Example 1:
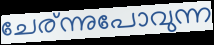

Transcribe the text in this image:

ചേര്ന്നുപോവുന്ന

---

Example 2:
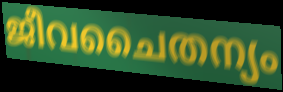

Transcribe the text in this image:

ജീവചൈതന്യം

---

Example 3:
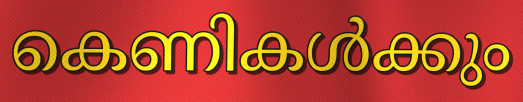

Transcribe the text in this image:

കെണികൾക്കും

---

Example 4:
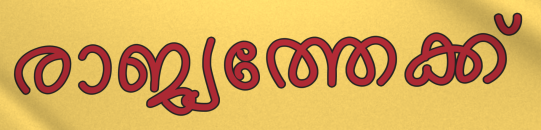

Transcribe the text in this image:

രാജ്യത്തേക്ക്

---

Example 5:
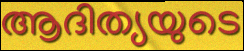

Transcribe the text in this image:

ആദിത്യയുടെ